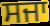
ਸਜਾ